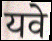
यवे